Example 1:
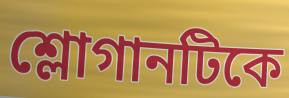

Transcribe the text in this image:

শ্লোগানটিকে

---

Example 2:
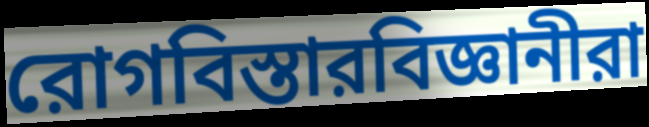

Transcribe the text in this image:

রোগবিস্তারবিজ্ঞানীরা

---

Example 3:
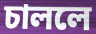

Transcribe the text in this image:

চাললে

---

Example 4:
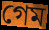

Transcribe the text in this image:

গেম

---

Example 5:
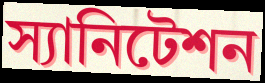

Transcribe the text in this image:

স্যানিটেশন